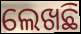
ଲେଖଛି